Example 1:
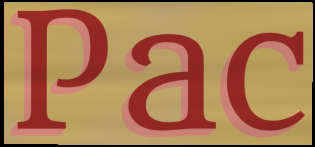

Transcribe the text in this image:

Pac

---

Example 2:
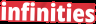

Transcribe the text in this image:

infinities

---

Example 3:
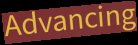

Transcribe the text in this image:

Advancing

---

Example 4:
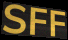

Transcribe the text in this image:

SFF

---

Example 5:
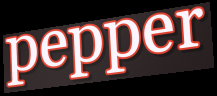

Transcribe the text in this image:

pepper